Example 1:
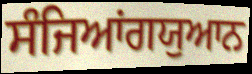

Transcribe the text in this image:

ਸੰਜਿਆਂਗਯੁਆਨ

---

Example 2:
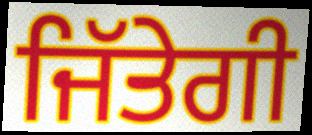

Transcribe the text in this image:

ਜਿੱਤੇਗੀ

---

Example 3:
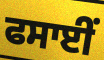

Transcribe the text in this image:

ਫਸਾਈਂ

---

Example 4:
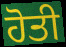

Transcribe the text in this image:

ਹੋਤੀ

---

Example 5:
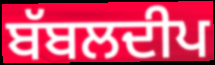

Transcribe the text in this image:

ਬੱਬਲਦੀਪ